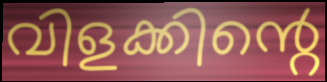
വിളക്കിന്റെ